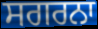
ਸਗਰਨਾ